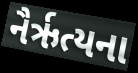
નૈર્ઋત્યના